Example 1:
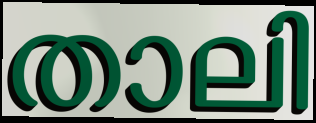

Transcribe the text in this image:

താലി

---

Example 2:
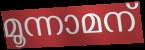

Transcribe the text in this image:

മൂന്നാമന്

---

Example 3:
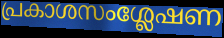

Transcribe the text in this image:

പ്രകാശസംശ്ലേഷണ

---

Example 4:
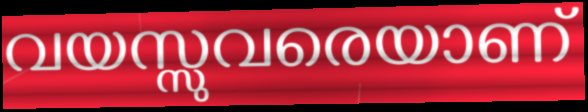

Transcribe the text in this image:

വയസ്സുവരെയാണ്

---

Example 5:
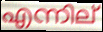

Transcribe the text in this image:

എന്നില്